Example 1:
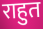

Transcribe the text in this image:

राहुत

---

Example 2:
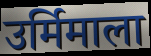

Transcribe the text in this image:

उर्मिमाला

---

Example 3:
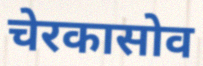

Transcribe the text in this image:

चेरकासोव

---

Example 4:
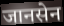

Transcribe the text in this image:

जानसेन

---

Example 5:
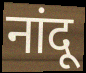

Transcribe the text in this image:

नांदू